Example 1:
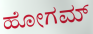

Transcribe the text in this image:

ಹೋಗಮ್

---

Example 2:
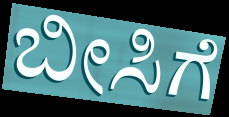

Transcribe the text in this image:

ಬೀಸಿಗೆ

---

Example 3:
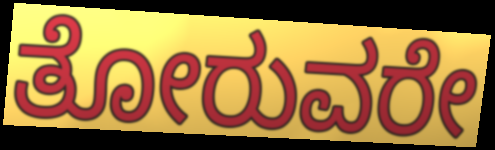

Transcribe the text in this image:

ತೋರುವರೇ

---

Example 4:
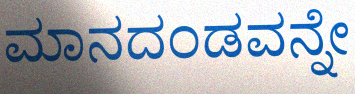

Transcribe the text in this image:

ಮಾನದಂಡವನ್ನೇ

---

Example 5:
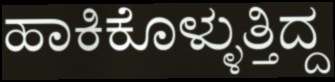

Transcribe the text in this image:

ಹಾಕಿಕೊಳ್ಳುತ್ತಿದ್ದ